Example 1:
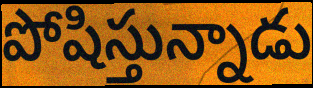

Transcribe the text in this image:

పోషిస్తున్నాడు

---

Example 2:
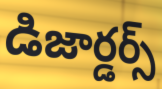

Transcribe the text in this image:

డిజార్డర్స్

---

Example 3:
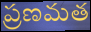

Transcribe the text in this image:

ప్రణమత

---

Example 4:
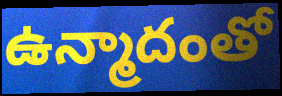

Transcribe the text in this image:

ఉన్మాదంతో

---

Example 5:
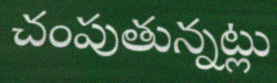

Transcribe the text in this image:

చంపుతున్నట్లు